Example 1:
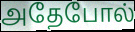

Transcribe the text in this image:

அதேபோல்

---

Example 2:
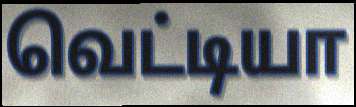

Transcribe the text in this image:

வெட்டியா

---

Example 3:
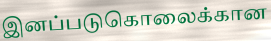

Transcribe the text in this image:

இனப்படுகொலைக்கான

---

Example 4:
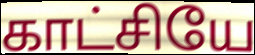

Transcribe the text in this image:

காட்சியே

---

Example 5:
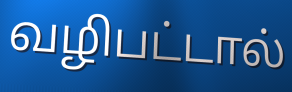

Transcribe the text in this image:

வழிபட்டால்